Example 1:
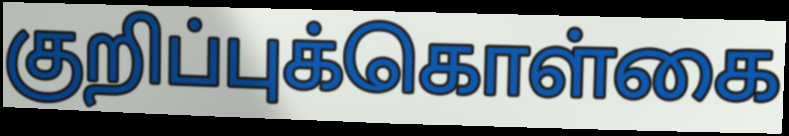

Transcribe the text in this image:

குறிப்புக்கொள்கை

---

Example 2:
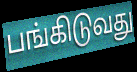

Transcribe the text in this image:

பங்கிடுவது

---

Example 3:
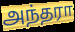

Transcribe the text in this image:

அந்தரா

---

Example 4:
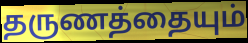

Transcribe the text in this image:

தருணத்தையும்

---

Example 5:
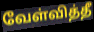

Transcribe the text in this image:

வேள்வித்தீ